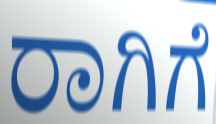
ರಾಗಿಗೆ